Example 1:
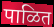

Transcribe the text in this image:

पाळित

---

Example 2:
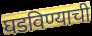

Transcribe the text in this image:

घडविण्याची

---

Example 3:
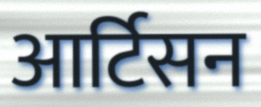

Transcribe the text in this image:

आर्टिसन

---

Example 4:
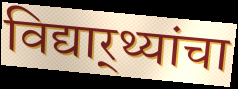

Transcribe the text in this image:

विद्यार्थ्यांचा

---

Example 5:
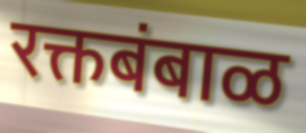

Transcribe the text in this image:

रक्तबंबाळ